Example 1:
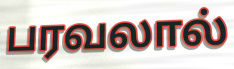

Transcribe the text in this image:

பரவலால்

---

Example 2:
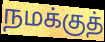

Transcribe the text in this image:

நமக்குத்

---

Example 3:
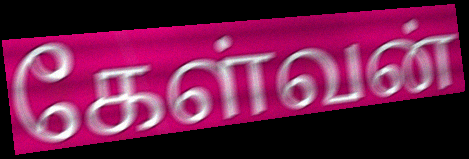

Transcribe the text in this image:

கேள்வன்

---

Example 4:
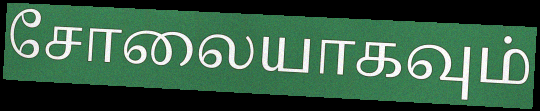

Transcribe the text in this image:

சோலையாகவும்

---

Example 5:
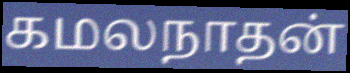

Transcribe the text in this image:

கமலநாதன்